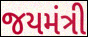
જયમંત્રી